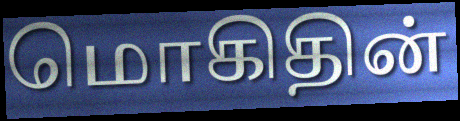
மொகிதின்